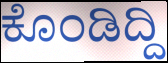
ಕೊಂಡಿದ್ದಿ